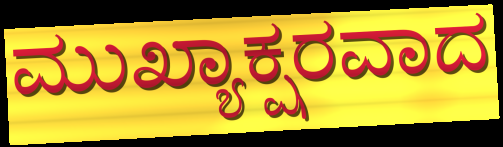
ಮುಖ್ಯಾಕ್ಷರವಾದ